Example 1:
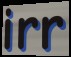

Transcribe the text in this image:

irr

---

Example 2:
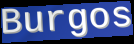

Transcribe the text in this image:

Burgos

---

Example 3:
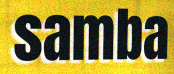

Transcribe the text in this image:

samba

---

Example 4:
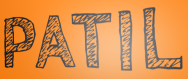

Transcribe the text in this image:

PATIL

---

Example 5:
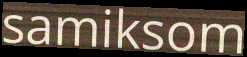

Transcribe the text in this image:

samiksom